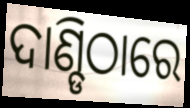
ଦାଣ୍ଡିଠାରେ